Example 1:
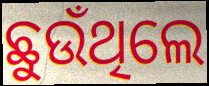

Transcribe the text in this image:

ଛୁଉଁଥିଲେ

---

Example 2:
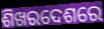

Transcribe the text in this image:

ଶିଖରଦେଶରେ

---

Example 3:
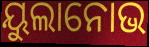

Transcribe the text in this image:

ୟୁଲାନୋଭ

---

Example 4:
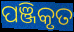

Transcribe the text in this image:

ପଞ୍ଜିକୃତ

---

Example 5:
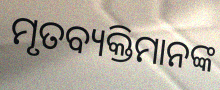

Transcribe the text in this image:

ମୃତବ୍ୟକ୍ତିମାନଙ୍କ